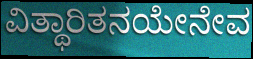
ವಿತ್ಥಾರಿತನಯೇನೇವ